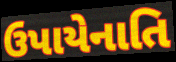
ઉપાયેનાતિ